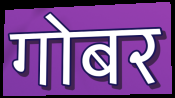
गोबर